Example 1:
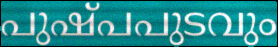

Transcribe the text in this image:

പുഷ്പപുടവും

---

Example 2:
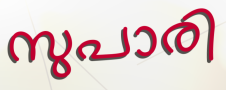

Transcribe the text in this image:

സുപാരി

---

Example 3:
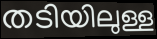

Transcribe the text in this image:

തടിയിലുള്ള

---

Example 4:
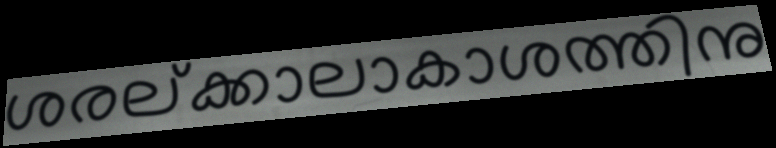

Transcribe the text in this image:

ശരല്ക്കാലാകാശത്തിനു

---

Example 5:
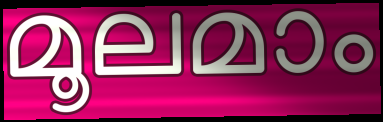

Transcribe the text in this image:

മൂലമാം